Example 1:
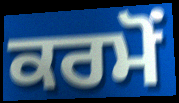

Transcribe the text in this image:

ਕਰਮੋਂ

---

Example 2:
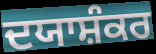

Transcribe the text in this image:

ਦਯਾਸ਼ੰਕਰ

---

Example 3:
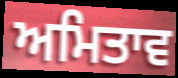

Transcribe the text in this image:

ਅਮਿਤਾਵ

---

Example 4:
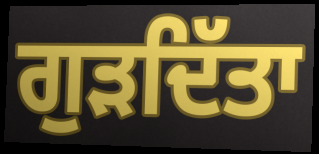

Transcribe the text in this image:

ਗੁੜਦਿੱਤਾ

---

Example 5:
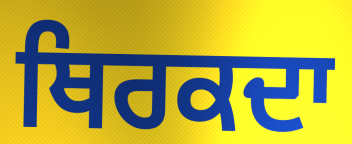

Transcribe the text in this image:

ਥਿਰਕਦਾ